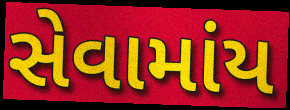
સેવામાંય